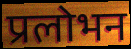
प्रलोभन